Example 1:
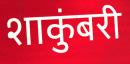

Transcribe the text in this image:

शाकुंबरी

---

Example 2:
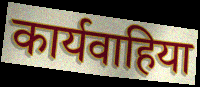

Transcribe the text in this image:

कार्यवाहिया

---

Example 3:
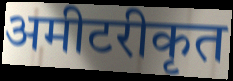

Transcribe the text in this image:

अमीटरीकृत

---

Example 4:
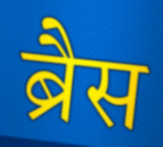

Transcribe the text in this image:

ब्रैस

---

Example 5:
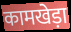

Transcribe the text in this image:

कामखेड़ा